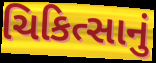
ચિકિત્સાનું